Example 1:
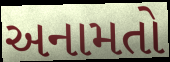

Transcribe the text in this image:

અનામતો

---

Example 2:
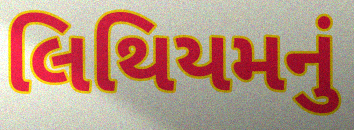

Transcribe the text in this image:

લિથિયમનું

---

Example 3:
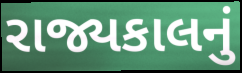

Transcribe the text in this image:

રાજ્યકાલનું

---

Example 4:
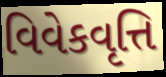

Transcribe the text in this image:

વિવેકવૃત્તિ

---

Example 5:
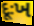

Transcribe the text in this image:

દૂઃખ